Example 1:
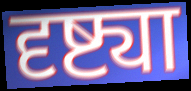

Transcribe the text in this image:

दृष्ट्या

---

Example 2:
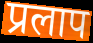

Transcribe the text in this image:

प्रलाप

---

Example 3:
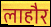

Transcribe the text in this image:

लाहौर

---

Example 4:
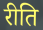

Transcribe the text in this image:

रीति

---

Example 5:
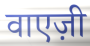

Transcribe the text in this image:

वाएज़ी